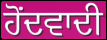
ਹੋਂਦਵਾਦੀ